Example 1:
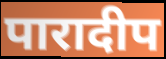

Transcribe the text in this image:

पारादीप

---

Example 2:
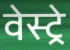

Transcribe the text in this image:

वेस्ट्रे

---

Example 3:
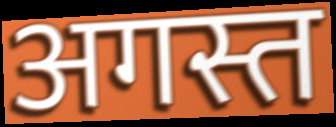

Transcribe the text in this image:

अगस्‍त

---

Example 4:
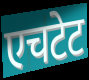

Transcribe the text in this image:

एचटेट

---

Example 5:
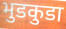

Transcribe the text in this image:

भुडकुडा